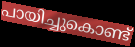
പായിച്ചുകൊണ്ട്